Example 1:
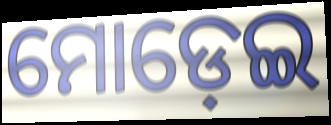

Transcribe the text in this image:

ମୋଡ଼େଇ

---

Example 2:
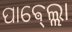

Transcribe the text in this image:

ପାଵ୍ଲ୍ଲୋ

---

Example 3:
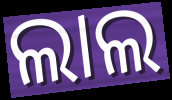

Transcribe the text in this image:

ଲାଲ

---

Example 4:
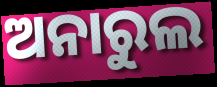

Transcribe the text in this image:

ଅନାରୁଲ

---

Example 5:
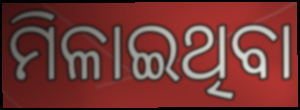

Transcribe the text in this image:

ମିଳାଇଥିବା